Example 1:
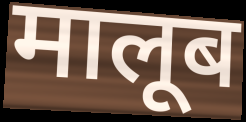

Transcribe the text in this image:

मालूब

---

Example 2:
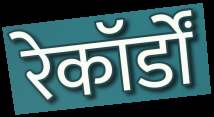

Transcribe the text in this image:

रेकॉर्डों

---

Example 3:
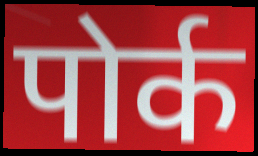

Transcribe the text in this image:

पोर्क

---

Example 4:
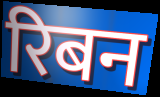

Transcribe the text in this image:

रिबन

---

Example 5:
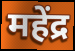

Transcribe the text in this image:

महेंद्र